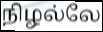
நிழல்லே